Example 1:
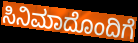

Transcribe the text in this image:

ಸಿನಿಮಾದೊಂದಿಗೆ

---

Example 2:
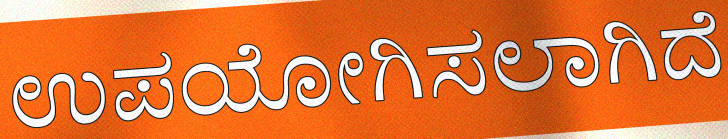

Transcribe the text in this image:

ಉಪಯೋಗಿಸಲಾಗಿದೆ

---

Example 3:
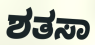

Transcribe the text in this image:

ಶತಸಾ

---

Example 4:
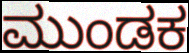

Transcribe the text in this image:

ಮುಂಡಕ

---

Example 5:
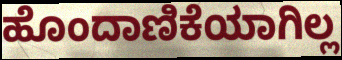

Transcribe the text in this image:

ಹೊಂದಾಣಿಕೆಯಾಗಿಲ್ಲ